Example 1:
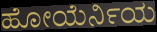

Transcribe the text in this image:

ಹೋಯೆರ್ನಿಯ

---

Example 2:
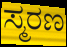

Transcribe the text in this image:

ಸ್ಮರಣ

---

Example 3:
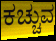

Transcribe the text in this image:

ಕಚ್ಚುವ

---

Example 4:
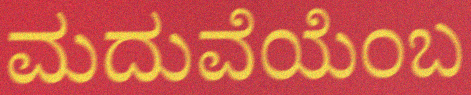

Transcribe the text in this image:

ಮದುವೆಯೆಂಬ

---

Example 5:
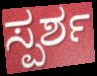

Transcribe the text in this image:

ಸ್ಪರ್ಶ